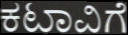
ಕಟಾವಿಗೆ